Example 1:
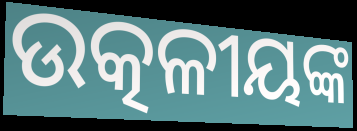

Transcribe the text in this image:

ଉତ୍କଳୀୟଙ୍କ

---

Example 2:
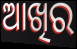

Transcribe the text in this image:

ଆଖିର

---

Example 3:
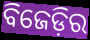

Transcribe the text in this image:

ବିଜେଡ଼ିର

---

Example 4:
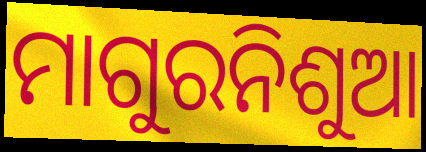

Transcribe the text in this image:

ମାଗୁରନିଶୁଆ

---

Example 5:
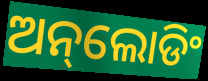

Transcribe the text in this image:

ଅନ୍‌ଲୋଡିଂ